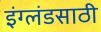
इंग्लंडसाठी